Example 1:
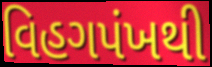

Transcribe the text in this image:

વિહગપંખથી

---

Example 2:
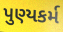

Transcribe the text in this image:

પુણ્યકર્મ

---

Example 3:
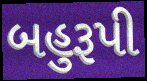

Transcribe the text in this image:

બહુરૂપી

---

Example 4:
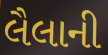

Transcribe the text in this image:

લૈલાની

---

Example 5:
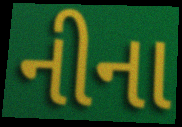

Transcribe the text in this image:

નીના